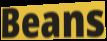
Beans